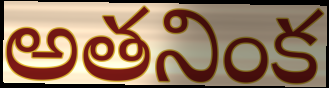
అతనింక